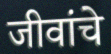
जीवांचे